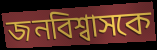
জনবিশ্বাসকে